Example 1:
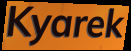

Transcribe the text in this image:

Kyarek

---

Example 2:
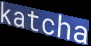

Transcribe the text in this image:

katcha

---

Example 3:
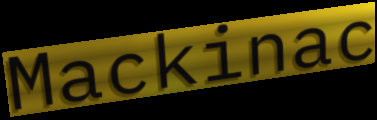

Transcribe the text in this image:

Mackinac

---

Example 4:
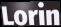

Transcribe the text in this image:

Lorin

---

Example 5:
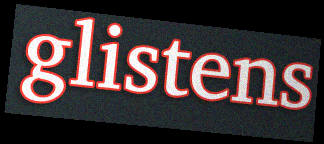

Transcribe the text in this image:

glistens